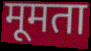
मूमता